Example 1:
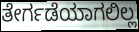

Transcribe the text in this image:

ತೇರ್ಗಡೆಯಾಗಲಿಲ್ಲ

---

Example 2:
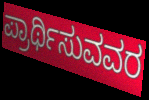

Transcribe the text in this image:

ಪ್ರಾರ್ಥಿಸುವವರ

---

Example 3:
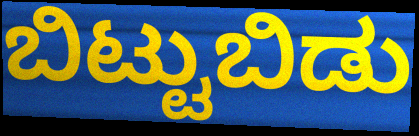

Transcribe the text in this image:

ಬಿಟ್ಟುಬಿಡು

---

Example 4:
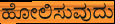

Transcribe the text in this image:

ಹೋಲಿಸುವುದು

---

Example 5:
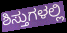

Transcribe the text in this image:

ಶಿಸ್ತುಗಳಲ್ಲಿ